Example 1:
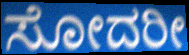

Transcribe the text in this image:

ಸೋದರೀ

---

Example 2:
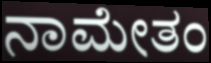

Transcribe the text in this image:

ನಾಮೇತಂ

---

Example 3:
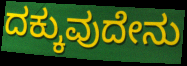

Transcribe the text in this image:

ದಕ್ಕುವುದೇನು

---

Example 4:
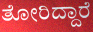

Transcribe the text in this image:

ತೋರಿದ್ದಾರೆ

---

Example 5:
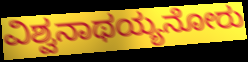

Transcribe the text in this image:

ವಿಶ್ವನಾಥಯ್ಯನೋರು